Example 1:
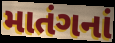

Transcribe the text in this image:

માતંગનાં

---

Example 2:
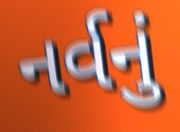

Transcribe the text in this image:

નર્વનું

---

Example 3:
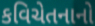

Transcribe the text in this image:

કવિચેતનાનો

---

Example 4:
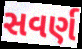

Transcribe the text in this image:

સવર્ણ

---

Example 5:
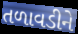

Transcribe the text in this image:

તળાવડીને